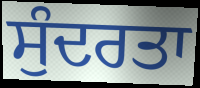
ਸੁੰਦਰਤਾ